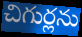
చిగుర్లను